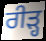
ਰੀੜ੍ਹ